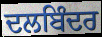
ਦਲਬਿੰਦਰ